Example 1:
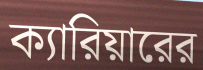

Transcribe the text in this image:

ক্যারিয়ারের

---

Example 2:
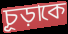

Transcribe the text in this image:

চূড়াকে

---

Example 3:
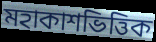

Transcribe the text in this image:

মহাকাশভিত্তিক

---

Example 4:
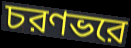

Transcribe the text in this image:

চরণভরে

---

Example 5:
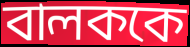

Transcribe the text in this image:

বালককে